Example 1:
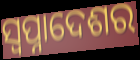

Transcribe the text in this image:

ସ୍ଵପ୍ନାଦେଶର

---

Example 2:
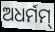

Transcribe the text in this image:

ଅଧର୍ମମ୍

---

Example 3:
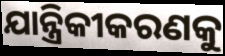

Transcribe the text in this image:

ଯାନ୍ତ୍ରିକୀକରଣକୁ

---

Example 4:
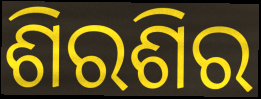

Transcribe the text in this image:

ଶିରଶିର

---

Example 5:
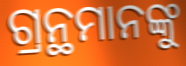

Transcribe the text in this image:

ଗ୍ରନ୍ଥମାନଙ୍କୁ